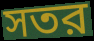
সতর